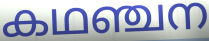
കഥഞ്ചന